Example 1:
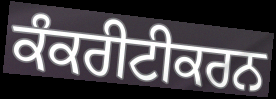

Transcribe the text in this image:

ਕੰਕਰੀਟੀਕਰਨ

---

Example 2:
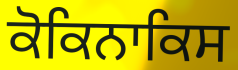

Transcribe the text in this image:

ਕੋਕਿਨਾਕਿਸ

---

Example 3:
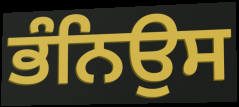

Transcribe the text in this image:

ਭੰਨਿਉਸ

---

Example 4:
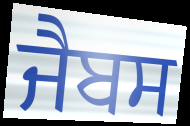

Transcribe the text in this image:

ਜੈਬਸ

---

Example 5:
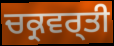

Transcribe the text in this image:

ਚਕ੍ਰਵਰ੍ਤੀ